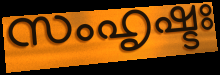
സംഹൃഷ്ടഃ